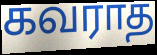
கவராத